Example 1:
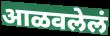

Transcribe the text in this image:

आळवलेलं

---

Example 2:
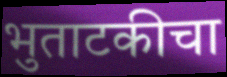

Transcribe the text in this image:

भुताटकीचा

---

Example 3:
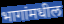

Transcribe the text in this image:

भागांमधील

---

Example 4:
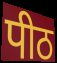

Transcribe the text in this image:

पीठ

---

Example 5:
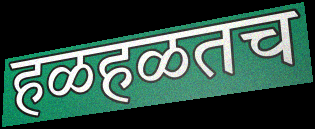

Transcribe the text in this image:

हळहळतच